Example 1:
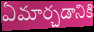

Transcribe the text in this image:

ఏమార్చడానికి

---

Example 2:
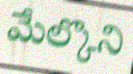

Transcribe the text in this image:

మేల్కొని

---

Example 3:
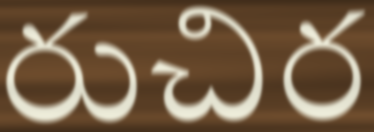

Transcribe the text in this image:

రుచిర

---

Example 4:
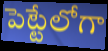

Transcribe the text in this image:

పెట్టేలోగా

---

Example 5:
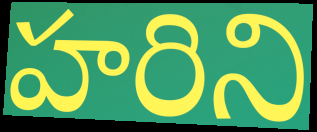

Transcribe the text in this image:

హరిని